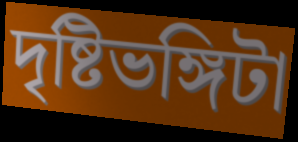
দৃষ্টিভঙ্গিটা